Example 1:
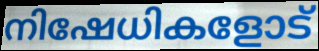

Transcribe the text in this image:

നിഷേധികളോട്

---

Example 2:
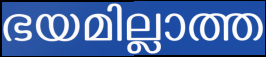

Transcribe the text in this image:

ഭയമില്ലാത്ത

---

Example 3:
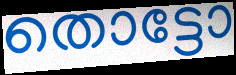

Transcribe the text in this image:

തൊട്ടോ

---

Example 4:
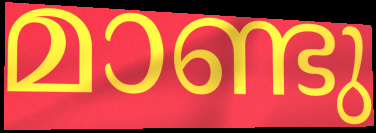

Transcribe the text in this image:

മാണ്ടു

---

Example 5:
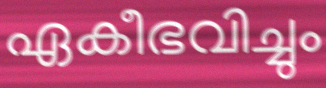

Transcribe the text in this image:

ഏകീഭവിച്ചും